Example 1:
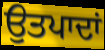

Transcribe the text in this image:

ਉਤਪਾਦਾਂ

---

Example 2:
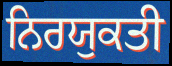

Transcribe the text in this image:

ਨਿਰਯੁਕਤੀ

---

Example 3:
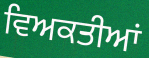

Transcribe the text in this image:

ਵਿਅਕਤੀਆਂ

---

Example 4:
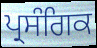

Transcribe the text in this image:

ਪ੍ਰਸੰਗਿਕ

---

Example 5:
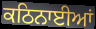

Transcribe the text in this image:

ਕਠਿਨਾਈਆਂ